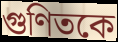
গুণিতকে